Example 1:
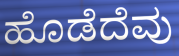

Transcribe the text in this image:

ಹೊಡೆದೆವು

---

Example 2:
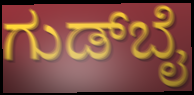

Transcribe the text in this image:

ಗುಡ್‌ಬೈ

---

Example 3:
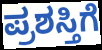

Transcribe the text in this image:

ಪ್ರಶಸ್ತಿಗೆ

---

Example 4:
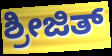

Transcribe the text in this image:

ಶ್ರೀಜಿತ್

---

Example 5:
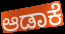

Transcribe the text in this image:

ಆಡಾಕೆ